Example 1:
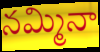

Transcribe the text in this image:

నమ్మినా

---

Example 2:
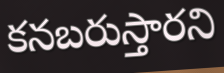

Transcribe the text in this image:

కనబరుస్తారని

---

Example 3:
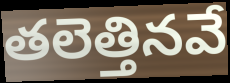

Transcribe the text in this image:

తలెత్తినవే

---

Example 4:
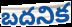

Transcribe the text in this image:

బదనిక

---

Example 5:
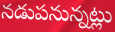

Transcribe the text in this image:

నడుపనున్నట్లు